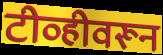
टीव्हीवरून